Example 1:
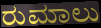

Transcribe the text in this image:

ರುಮಾಲು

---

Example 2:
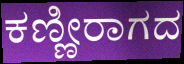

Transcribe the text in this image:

ಕಣ್ಣೀರಾಗದ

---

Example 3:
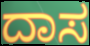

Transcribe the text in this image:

ದಾಸ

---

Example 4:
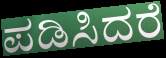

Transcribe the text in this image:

ಪಡಿಸಿದರೆ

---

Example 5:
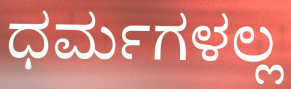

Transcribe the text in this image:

ಧರ್ಮಗಳಲ್ಲ